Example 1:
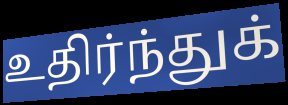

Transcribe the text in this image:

உதிர்ந்துக்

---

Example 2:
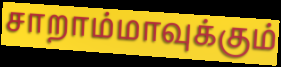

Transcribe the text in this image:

சாறாம்மாவுக்கும்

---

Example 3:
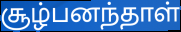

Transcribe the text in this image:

சூழ்பனந்தாள்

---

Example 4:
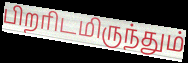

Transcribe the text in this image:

பிறரிடமிருந்தும்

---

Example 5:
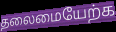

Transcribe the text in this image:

தலைமையேற்க